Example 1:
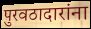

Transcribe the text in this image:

पुरवठादारांना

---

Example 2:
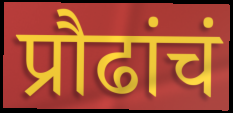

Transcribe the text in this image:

प्रौढांचं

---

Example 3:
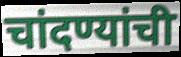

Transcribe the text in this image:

चांदण्यांची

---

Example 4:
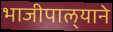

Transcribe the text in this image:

भाजीपाल्याने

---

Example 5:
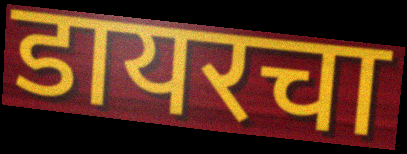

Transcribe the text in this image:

डायरचा